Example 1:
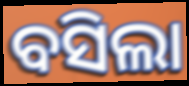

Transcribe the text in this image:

ବସିଲା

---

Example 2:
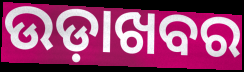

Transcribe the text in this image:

ଉଡ଼ାଖବର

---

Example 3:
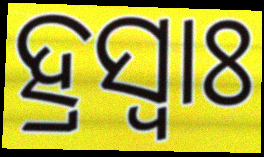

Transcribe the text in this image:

ହ୍ରସ୍ଵାଃ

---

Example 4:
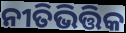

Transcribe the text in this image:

ନୀତିଭିତ୍ତିକ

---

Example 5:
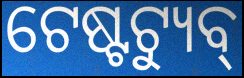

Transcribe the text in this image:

ଟେଷ୍ଟଟ୍ୟୁବ୍